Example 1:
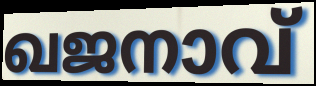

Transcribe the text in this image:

ഖജനാവ്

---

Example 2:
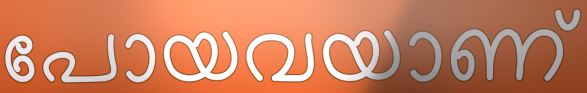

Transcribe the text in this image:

പോയവയാണ്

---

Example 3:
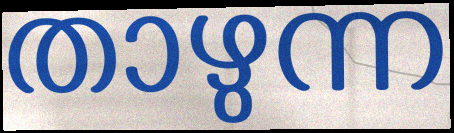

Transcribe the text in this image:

താഴുന്ന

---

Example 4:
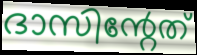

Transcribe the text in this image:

ദാസിന്റേത്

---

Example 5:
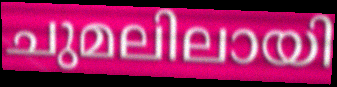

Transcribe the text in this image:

ചുമലിലായി